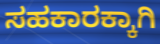
ಸಹಕಾರಕ್ಕಾಗಿ